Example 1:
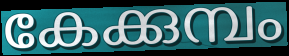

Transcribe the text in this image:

കേക്കുമ്പം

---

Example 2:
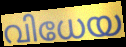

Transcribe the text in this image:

വിധേയ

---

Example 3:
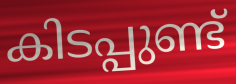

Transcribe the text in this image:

കിടപ്പുണ്ട്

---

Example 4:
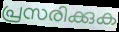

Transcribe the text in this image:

പ്രസരിക്കുക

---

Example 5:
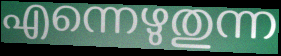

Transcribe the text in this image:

എന്നെഴുതുന്ന